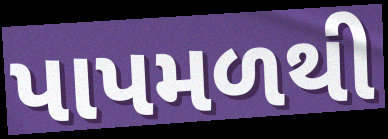
પાપમળથી